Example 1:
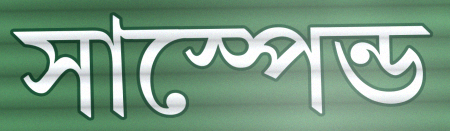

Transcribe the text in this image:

সাস্পেন্ড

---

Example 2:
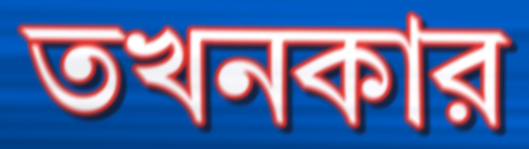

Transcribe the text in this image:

তখনকার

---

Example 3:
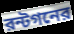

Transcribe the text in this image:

রন্টগনের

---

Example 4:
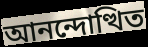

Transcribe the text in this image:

আনন্দোত্থিত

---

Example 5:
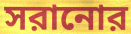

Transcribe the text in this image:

সরানোর